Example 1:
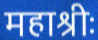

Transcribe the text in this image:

महाश्रीः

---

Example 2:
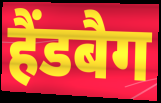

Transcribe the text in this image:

हैंडबैग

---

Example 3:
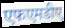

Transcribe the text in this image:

एफएमडीए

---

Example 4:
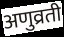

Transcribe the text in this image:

अणुव्रती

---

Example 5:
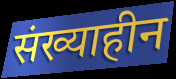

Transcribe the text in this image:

संख्याहीन